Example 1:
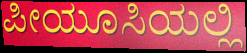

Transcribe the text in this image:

ಪೀಯೂಸಿಯಲ್ಲಿ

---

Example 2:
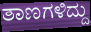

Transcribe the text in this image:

ತಾಣಗಳಿದ್ದು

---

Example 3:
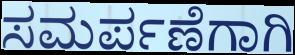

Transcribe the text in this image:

ಸಮರ್ಪಣೆಗಾಗಿ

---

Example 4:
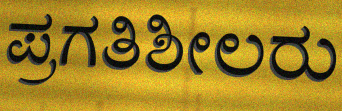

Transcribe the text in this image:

ಪ್ರಗತಿಶೀಲರು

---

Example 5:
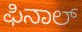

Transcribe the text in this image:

ಫಿನಾಲ್